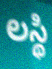
లస్థి